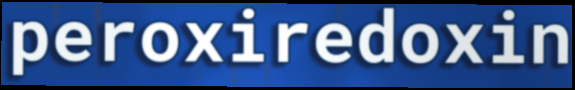
peroxiredoxin